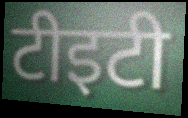
टीइटी